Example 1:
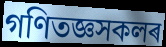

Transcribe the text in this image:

গণিতজ্ঞসকলৰ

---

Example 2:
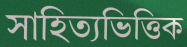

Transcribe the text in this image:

সাহিত্যভিত্তিক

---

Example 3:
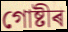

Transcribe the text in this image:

গোষ্টীৰ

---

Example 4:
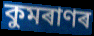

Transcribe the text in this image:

কুমৰাণৰ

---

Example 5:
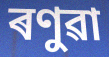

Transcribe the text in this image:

ৰণুৱা